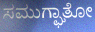
ಸಮುಗ್ಘಾತೋ